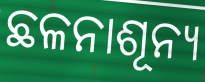
ଛଳନାଶୂନ୍ୟ